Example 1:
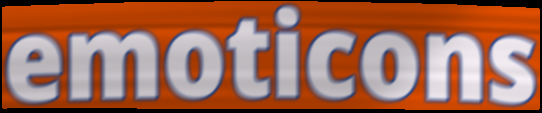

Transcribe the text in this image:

emoticons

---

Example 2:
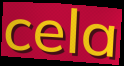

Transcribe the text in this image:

cela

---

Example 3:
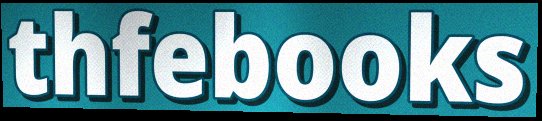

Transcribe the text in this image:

thfebooks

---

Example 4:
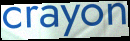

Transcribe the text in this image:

crayon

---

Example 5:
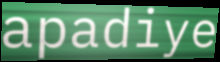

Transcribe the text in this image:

apadiye